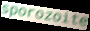
sporozoite